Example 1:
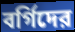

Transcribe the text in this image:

বর্গিদের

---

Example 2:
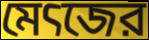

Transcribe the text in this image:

মেৎজের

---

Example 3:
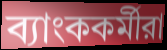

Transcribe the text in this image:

ব্যাংককর্মীরা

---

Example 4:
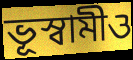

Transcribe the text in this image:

ভূস্বামীও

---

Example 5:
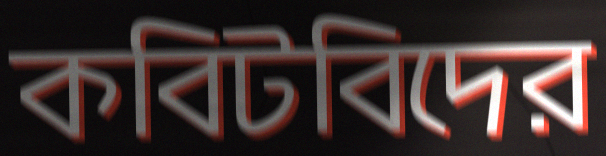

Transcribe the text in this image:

কবিটবিদের